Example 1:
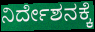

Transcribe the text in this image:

ನಿರ್ದೇಶನಕ್ಕೆ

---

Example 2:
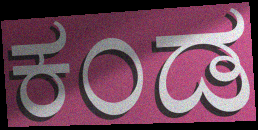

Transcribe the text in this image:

ಕಂಡ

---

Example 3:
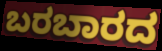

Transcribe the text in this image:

ಬರಬಾರದ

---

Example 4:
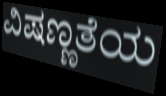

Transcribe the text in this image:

ವಿಷಣ್ಣತೆಯ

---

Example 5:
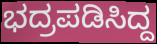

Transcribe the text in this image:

ಭದ್ರಪಡಿಸಿದ್ದ